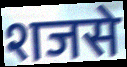
शजसे